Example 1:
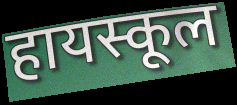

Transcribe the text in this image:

हायस्कूल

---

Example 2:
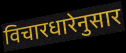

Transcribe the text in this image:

विचारधारेनुसार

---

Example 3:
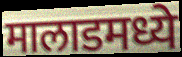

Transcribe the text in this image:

मालाडमध्ये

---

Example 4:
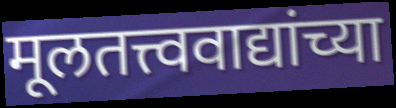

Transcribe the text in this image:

मूलतत्त्ववाद्यांच्या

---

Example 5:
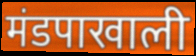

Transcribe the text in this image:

मंडपाखाली